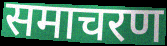
समाचरण